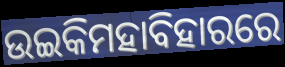
ଉଇକିମହାବିହାରରେ